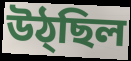
উঠ্ছিল